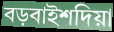
বড়বাইশদিয়া